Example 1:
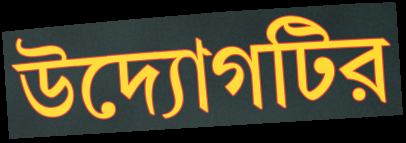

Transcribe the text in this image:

উদ্যোগটির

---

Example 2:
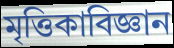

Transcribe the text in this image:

মৃত্তিকাবিজ্ঞান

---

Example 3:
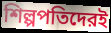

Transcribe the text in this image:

শিল্পপতিদেরই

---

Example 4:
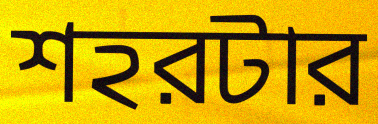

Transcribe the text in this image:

শহরটার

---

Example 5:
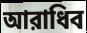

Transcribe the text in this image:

আরাধিব